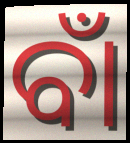
ବାଁ